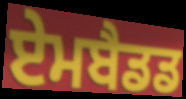
ਏਮਬੈਡਡ